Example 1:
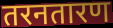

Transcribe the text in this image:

तरनतारण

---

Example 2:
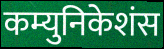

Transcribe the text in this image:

कम्‍युनिकेशंस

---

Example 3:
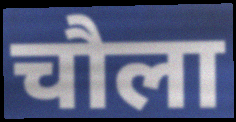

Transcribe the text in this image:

चौला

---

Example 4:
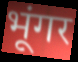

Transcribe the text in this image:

भूंगर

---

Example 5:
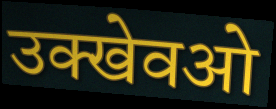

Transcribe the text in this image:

उक्खेवओ